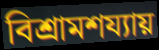
বিশ্রামশয্যায়